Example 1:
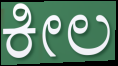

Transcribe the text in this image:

ಕೀಲ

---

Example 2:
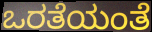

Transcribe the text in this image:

ಒರತೆಯಂತೆ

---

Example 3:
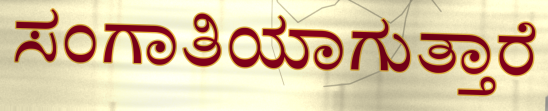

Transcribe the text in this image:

ಸಂಗಾತಿಯಾಗುತ್ತಾರೆ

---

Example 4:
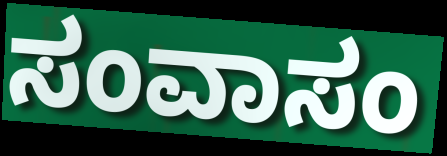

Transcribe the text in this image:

ಸಂವಾಸಂ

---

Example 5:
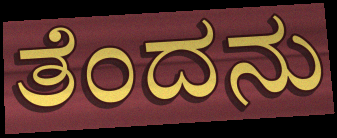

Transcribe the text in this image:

ತೆಂದನು